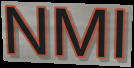
NMI